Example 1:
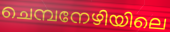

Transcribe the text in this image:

ചെമ്പനേഴിയിലെ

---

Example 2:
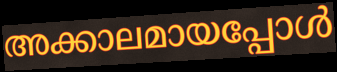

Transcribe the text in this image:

അക്കാലമായപ്പോൾ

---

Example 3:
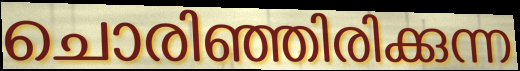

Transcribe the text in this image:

ചൊരിഞ്ഞിരിക്കുന്ന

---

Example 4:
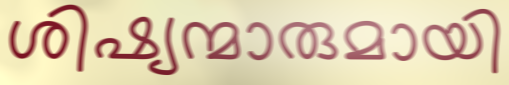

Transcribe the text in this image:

ശിഷ്യന്മാരുമായി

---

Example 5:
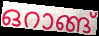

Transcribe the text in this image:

ഒറാങ്ങ്